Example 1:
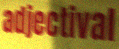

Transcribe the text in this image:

adjectival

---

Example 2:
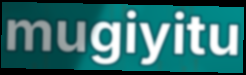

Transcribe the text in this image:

mugiyitu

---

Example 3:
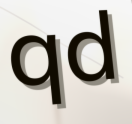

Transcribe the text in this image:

qd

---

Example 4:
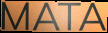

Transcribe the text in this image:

MATA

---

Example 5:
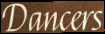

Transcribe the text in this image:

Dancers